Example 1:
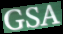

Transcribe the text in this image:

GSA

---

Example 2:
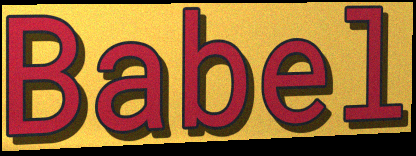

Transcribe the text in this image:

Babel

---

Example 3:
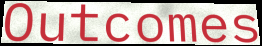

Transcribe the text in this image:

Outcomes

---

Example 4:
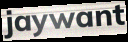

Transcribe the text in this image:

jaywant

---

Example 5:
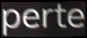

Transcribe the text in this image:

perte